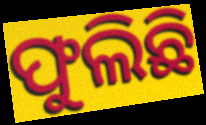
ଫୁଲିଛି